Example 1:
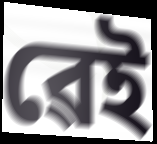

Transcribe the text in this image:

ৱেই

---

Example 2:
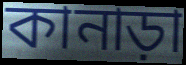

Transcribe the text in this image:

কানাড়া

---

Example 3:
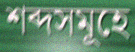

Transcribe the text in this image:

শব্দসমূহে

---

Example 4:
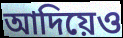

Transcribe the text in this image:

আদিয়েও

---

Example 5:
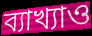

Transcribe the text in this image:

ব্যাখ্যাও